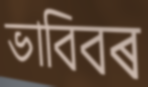
ভাবিবৰ